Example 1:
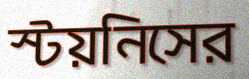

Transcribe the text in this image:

স্টয়নিসের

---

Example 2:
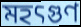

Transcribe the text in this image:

মহৎগুণ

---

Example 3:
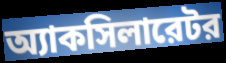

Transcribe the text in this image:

অ্যাকসিলারেটর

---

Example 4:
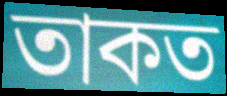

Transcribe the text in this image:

তাকত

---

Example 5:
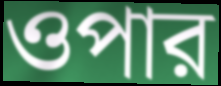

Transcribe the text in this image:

ওপার